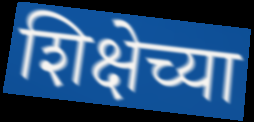
शिक्षेच्या